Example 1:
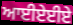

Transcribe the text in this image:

ਆਈਏਈਏ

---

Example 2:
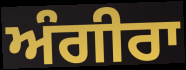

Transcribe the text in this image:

ਅੰਗੀਰਾ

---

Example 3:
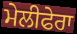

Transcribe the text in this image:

ਮੇਲੀਫੇਰਾ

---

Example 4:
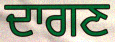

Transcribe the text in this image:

ਦਾਗਣ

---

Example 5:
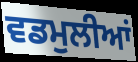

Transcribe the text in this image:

ਵਡਮੁਲੀਆਂ